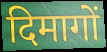
दिमागों